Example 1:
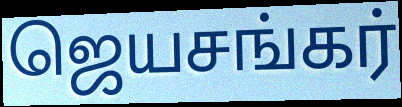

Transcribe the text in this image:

ஜெயசங்கர்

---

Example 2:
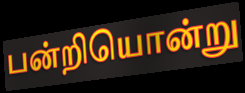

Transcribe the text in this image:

பன்றியொன்று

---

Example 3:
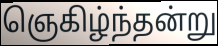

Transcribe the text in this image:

ஞெகிழ்ந்தன்று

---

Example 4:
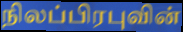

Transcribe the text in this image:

நிலப்பிரபுவின்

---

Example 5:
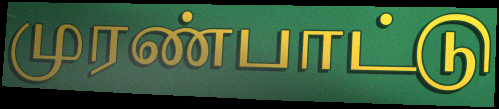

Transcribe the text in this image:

முரண்பாட்டு